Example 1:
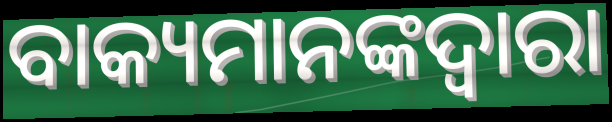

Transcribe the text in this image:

ବାକ୍ୟମାନଙ୍କଦ୍ୱାରା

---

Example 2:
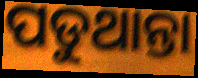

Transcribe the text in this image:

ପଡୁଥାନ୍ତା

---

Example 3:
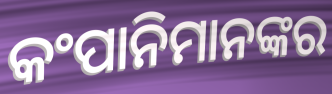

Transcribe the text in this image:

କଂପାନିମାନଙ୍କର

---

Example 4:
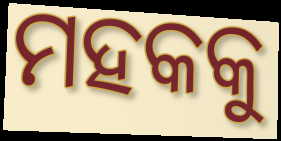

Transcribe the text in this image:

ମହକକୁ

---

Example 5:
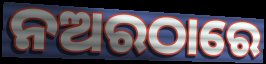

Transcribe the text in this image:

ନଅରଠାରେ